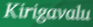
Kirigavalu